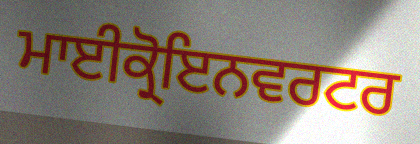
ਮਾਈਕ੍ਰੋਇਨਵਰਟਰ